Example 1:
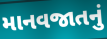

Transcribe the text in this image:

માનવજાતનું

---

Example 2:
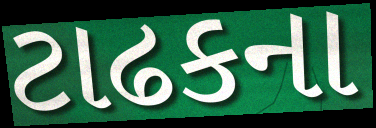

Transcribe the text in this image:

ટાઢકના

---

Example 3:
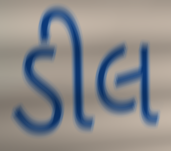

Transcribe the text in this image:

ડીલ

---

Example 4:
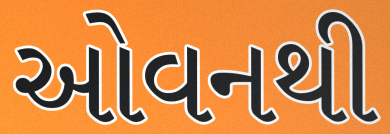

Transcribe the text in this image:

ઓવનથી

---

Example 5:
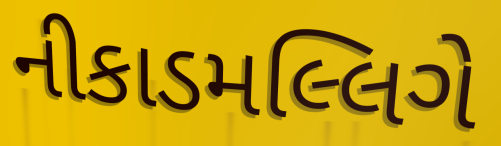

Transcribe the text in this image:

નીકાડમલ્લિગે